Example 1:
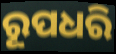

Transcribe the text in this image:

ରୂପଧରି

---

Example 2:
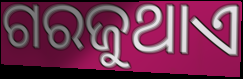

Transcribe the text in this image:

ଗରଜୁଥାଏ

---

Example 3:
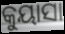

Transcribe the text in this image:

କୁୟାସା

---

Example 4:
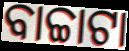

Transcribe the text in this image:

ବାଚ୍ଚାଟା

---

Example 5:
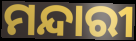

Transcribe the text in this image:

ମନ୍ଦାରୀ